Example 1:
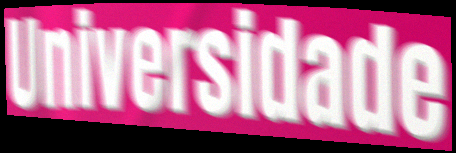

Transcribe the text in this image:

Universidade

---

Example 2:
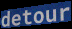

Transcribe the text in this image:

detour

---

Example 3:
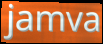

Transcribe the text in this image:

jamva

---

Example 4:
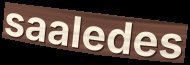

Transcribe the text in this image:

saaledes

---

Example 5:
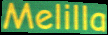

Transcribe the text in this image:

Melilla